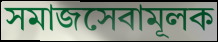
সমাজসেবামূলক